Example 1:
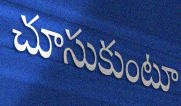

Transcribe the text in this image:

చూసుకుంటూ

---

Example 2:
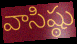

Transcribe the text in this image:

వాసిష్ఠు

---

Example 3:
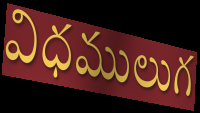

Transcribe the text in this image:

విధములుగ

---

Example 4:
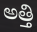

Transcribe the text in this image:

అత్తి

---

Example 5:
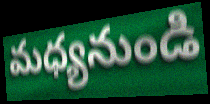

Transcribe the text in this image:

మధ్యనుండి